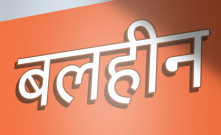
बलहीन